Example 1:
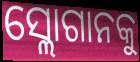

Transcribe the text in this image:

ସ୍ଲୋଗାନକୁ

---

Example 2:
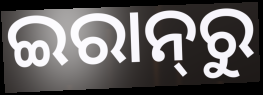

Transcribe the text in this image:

ଇରାନ୍‌ରୁ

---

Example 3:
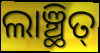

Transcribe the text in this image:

ଲାଞ୍ଛିତ୍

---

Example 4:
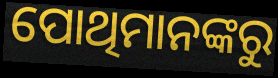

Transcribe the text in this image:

ପୋଥିମାନଙ୍କରୁ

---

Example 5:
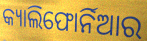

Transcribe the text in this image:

କ୍ୟାଲିଫୋର୍ନିଆର